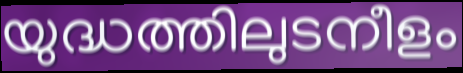
യുദ്ധത്തിലുടനീളം